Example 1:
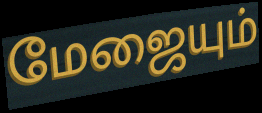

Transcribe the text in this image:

மேஜையும்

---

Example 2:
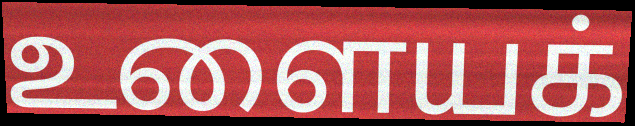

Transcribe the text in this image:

உளையக்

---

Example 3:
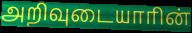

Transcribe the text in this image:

அறிவுடையாரின்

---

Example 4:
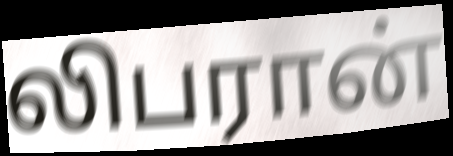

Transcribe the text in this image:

லிபரான்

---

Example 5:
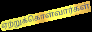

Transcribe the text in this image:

ஏற்றுக்கொள்வார்கள்